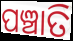
ପଞ୍ଚାତି